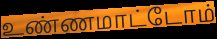
உண்ணமாட்டோம்